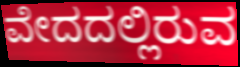
ವೇದದಲ್ಲಿರುವ